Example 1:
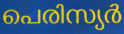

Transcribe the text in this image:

പെരിസ്യർ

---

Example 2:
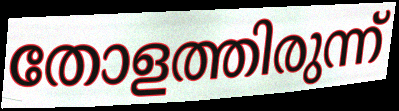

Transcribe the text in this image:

തോളത്തിരുന്ന്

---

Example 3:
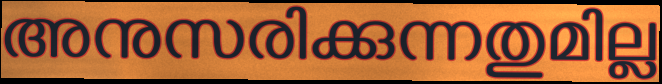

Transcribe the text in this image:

അനുസരിക്കുന്നതുമില്ല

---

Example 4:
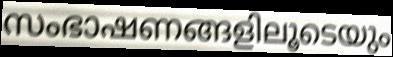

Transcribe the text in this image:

സംഭാഷണങ്ങളിലൂടെയും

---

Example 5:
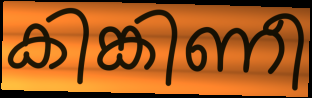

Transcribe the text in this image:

കിങ്കിണീ